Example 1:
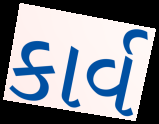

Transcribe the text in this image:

કાર્વ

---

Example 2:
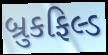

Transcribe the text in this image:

બ્રુકફિલ્ડ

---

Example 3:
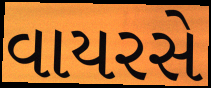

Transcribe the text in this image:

વાયરસે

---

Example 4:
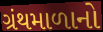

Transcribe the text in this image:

ગ્રંથમાળાનો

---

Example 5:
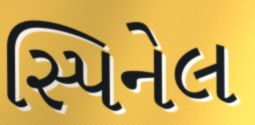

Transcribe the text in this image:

સ્પિનેલ